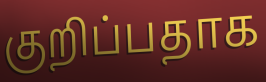
குறிப்பதாக